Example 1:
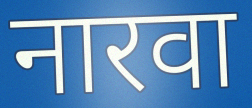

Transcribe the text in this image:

नारवा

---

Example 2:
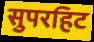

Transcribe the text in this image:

सुपरहिट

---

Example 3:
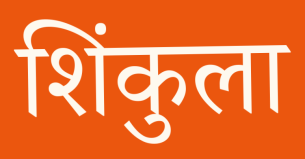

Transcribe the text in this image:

शिंकुला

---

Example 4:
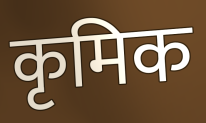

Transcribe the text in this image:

कृमिक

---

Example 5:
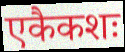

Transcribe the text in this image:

एकैकशः